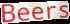
Beers